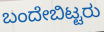
ಬಂದೇಬಿಟ್ಟರು